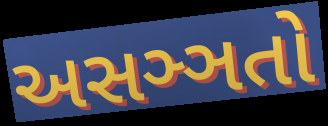
અસઞ્ઞતો